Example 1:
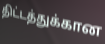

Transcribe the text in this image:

திட்டத்துக்கான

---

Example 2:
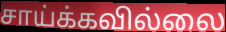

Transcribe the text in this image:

சாய்க்கவில்லை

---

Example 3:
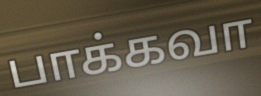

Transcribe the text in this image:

பாக்கவா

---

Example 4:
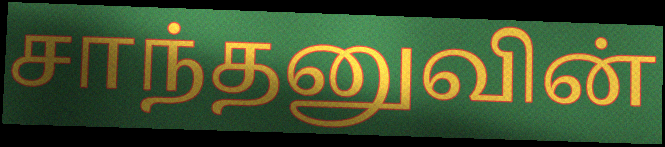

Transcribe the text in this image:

சாந்தனுவின்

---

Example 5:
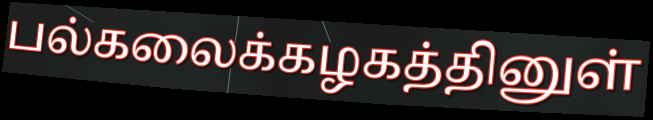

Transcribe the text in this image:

பல்கலைக்கழகத்தினுள்